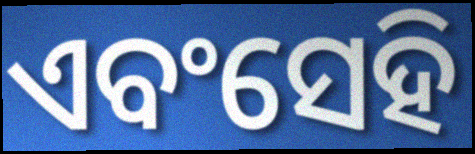
ଏବଂସେହି